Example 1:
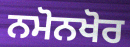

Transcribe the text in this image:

ਨਮੋਨਖੋਰ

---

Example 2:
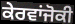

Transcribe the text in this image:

ਕੇਰਵਾਂਜੋਕੀ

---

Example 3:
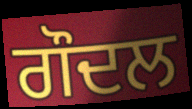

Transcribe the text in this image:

ਗੌਦਲ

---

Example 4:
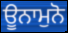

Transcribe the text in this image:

ਊਨਾਮੁਨੋ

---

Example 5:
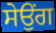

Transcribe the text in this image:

ਸੇਉਂਗ